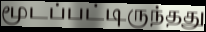
மூடப்பட்டிருந்தது